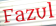
Fazul